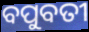
ବପୁବତୀ